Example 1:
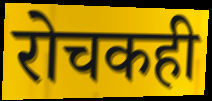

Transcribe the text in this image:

रोचकही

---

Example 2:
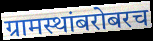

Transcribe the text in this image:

ग्रामस्थांबरोबरच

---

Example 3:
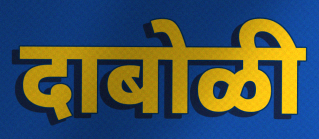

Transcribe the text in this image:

दाबोळी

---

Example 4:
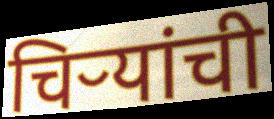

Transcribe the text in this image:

चिऱ्यांची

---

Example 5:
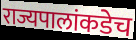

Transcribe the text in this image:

राज्यपालांकडेच